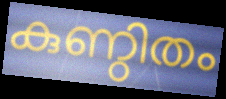
കുണ്ഠിതം